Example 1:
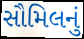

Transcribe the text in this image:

સૌમિલનું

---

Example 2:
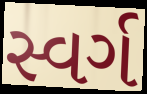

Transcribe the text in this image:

સ્વર્ગ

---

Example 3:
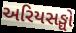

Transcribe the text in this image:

અરિયસઙ્ઘો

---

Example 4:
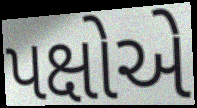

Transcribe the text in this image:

પક્ષોએ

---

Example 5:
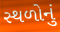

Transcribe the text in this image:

સ્થળોનું